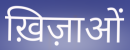
ख़िज़ाओं